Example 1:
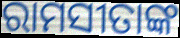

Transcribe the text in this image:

ରାମସୀତାଙ୍କ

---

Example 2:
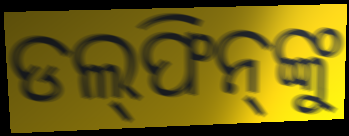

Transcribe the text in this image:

ଡଲ୍‌ଫିନ୍‌ଙ୍କୁ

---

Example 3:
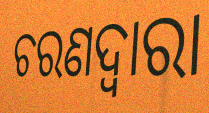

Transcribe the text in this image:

ଚରଣଦ୍ୱାରା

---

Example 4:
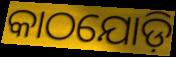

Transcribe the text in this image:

କାଠଯୋଡ଼ି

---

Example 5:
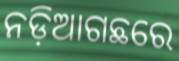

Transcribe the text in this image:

ନଡ଼ିଆଗଛରେ